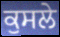
ਕੁਸਲੇ